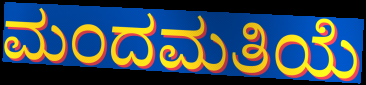
ಮಂದಮತಿಯೆ